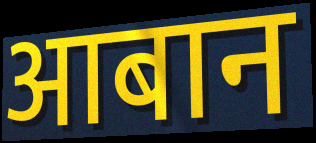
आबान